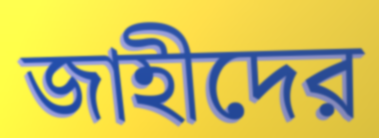
জাহীদের